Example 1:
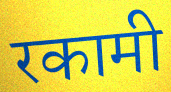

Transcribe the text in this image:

रकामी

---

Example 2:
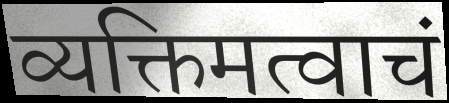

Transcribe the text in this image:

व्यक्तिमत्वाचं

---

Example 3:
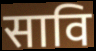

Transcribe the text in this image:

सावि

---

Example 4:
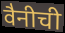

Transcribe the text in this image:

वैनीची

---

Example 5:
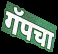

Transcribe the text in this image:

गॅपचा